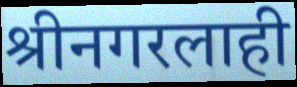
श्रीनगरलाही